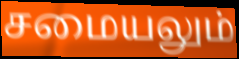
சமையலும்